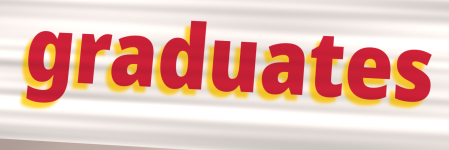
graduates